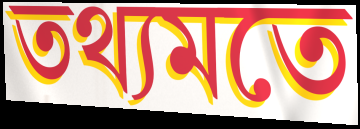
তথ্যমতে